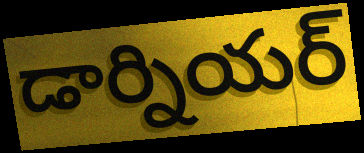
డార్నియర్